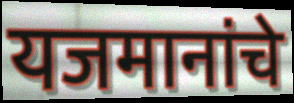
यजमानांचे